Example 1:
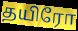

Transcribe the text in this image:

தயிரோ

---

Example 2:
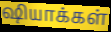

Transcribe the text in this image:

ஷியாக்கள்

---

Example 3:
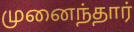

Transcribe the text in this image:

முனைந்தார்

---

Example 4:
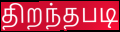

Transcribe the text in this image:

திறந்தபடி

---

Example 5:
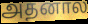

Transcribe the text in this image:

அதனால